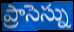
ప్రాసెస్ను